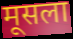
मूसला